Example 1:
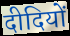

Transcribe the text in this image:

दीदियों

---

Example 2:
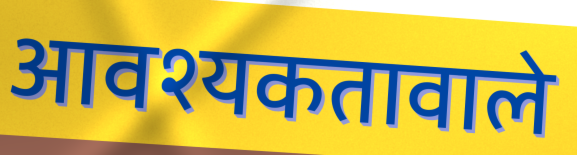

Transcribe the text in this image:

आवश्यकतावाले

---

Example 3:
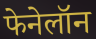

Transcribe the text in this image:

फेनेलॉन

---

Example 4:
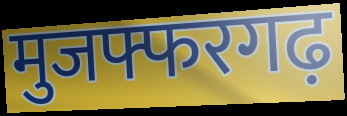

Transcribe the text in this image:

मुजफ्फरगढ़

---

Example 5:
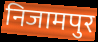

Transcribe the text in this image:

निजामपुर